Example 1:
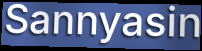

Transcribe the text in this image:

Sannyasin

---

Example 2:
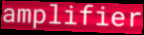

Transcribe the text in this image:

amplifier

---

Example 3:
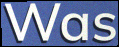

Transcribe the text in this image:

Was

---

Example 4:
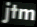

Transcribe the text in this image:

jtm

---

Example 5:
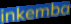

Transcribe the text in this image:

inkemba